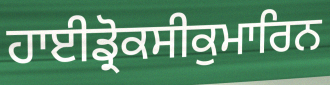
ਹਾਈਡ੍ਰੋਕਸੀਕੁਮਾਰਿਨ